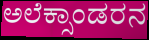
ಅಲೆಕ್ಸಾಂಡರನ